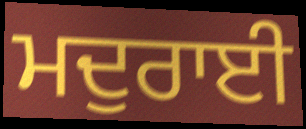
ਮਦੁਰਾਈ